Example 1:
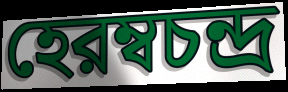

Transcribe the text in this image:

হেরম্বচন্দ্র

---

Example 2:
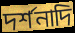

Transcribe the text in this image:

দর্শনাদি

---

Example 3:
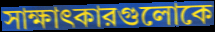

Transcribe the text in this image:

সাক্ষাৎকারগুলোকে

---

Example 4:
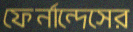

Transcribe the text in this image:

ফের্নান্দেসের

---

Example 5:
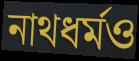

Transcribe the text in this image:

নাথধর্মও